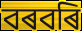
বৰবৰি